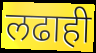
लढाही